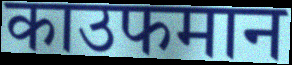
काउफमान